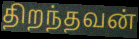
திறந்தவன்